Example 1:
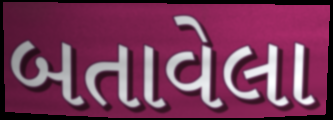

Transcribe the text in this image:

બતાવેલા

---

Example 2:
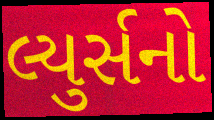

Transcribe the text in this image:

લ્યુર્સનો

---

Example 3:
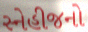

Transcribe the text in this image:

સ્નેહીજનો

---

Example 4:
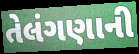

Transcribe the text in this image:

તેલંગણાની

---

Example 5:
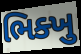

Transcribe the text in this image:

ભિક્ખુ